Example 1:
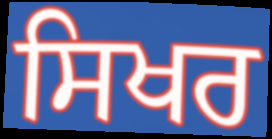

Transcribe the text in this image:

ਸਿਖਰ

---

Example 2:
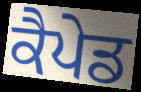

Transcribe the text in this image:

ਕੈਪੇਡ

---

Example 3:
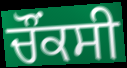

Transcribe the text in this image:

ਚੌਂਕਸੀ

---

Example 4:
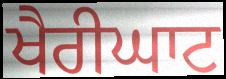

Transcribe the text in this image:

ਖੈਰੀਘਾਟ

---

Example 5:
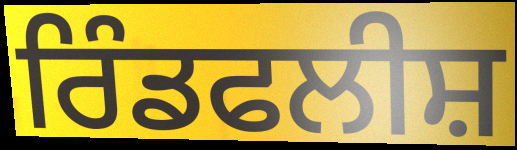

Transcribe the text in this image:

ਰਿੰਡਫਲੀਸ਼